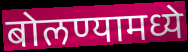
बोलण्यामध्ये